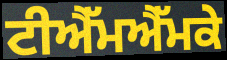
ਟੀਐੱਮਐੱਮਕੇ